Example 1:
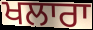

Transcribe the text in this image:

ਖਲਾਰਾ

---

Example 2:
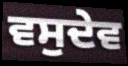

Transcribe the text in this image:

ਵਸੁਦੇਵ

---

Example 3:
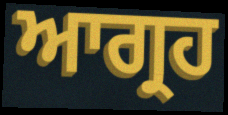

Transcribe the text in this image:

ਆਗ੍ਰਹ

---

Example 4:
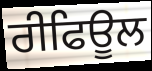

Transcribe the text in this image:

ਰੀਫਿਊਲ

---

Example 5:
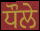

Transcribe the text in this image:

ਧੌਲੇ